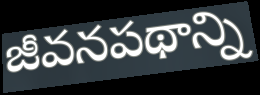
జీవనపథాన్ని